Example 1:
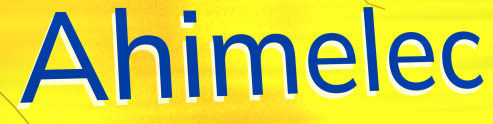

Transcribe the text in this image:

Ahimelec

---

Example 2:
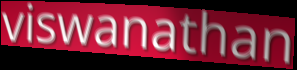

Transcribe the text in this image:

viswanathan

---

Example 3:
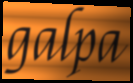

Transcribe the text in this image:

galpa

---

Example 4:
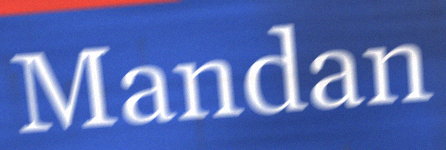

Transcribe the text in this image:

Mandan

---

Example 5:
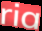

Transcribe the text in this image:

ria